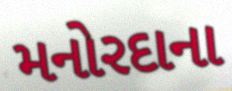
મનોરદાના